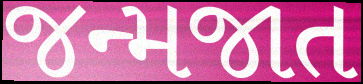
જન્મજાત